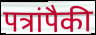
पत्रांपैकी